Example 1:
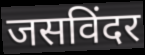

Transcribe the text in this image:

जसविंदर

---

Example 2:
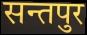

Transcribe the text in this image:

सन्तपुर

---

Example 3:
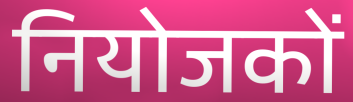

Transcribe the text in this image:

नियोजकों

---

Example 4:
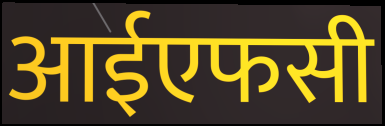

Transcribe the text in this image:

आईएफसी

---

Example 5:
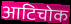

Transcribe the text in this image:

आटिचोक